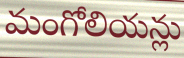
మంగోలియన్లు